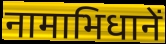
नामाभिधानें